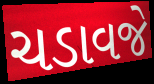
ચડાવજે